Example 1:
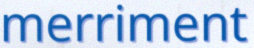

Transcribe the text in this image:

merriment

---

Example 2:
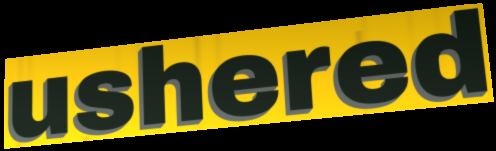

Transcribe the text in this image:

ushered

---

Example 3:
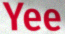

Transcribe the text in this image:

Yee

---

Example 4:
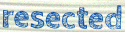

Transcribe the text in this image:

resected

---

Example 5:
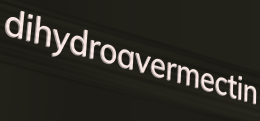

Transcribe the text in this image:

dihydroavermectin